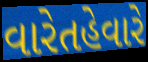
વારેતહેવારે